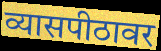
व्यासपीठावर